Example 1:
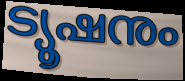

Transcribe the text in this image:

ട്യൂഷനും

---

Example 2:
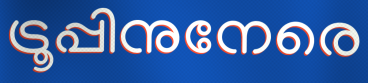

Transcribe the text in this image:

ട്രൂപ്പിനുനേരെ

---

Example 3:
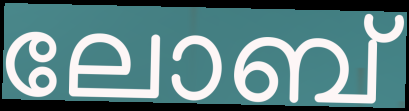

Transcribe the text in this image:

ലോബ്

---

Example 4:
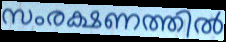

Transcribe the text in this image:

സംരക്ഷണത്തിൽ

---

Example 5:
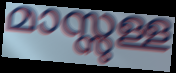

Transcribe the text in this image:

മാസ്സുള്ള